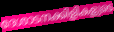
ദേശാടനക്കിളികളുടെ